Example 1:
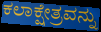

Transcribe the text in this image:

ಕಲಾಕ್ಷೇತ್ರವನ್ನು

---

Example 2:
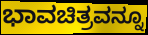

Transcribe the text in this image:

ಭಾವಚಿತ್ರವನ್ನೂ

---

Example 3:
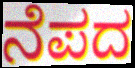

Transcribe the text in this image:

ನೆಪದ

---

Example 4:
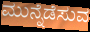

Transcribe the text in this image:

ಮುನ್ನೆಡೆಸುವ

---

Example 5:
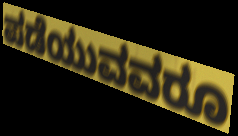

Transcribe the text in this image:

ಪಡೆಯುವವರೂ